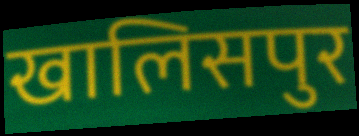
खालिसपुर